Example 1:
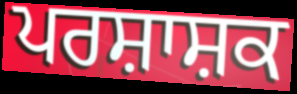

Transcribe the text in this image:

ਪਰਸ਼ਾਸ਼ਕ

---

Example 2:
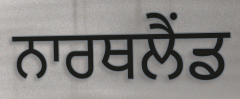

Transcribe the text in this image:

ਨਾਰਥਲੈਂਡ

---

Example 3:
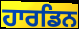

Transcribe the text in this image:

ਹਾਰਡਿਨ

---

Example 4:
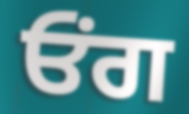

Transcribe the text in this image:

ਓਂਗ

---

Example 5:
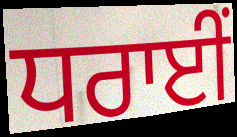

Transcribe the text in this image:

ਧਰਾਈਂ